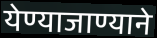
येण्याजाण्याने